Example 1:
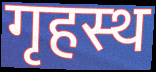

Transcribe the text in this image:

गृहस्थ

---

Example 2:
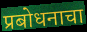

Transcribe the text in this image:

प्रबोधनाचा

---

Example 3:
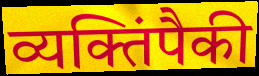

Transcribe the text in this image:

व्यक्तिंपैकी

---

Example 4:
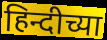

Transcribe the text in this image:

हिन्दीच्या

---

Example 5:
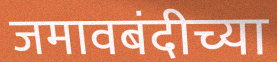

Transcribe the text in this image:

जमावबंदीच्या